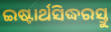
ଇଷ୍ଟାର୍ଥସିଦ୍ଧରସ୍ତୁ